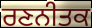
ਰਣਨੀਤਕ